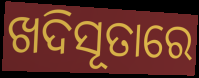
ଖଦିସୂତାରେ